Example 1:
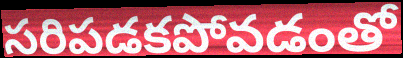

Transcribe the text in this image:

సరిపడకపోవడంతో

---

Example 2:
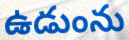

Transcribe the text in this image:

ఉడుంను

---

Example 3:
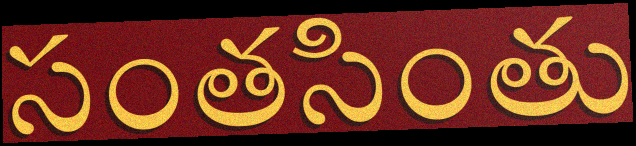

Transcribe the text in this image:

సంతసింతు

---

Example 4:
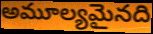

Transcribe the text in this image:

అమూల్యమైనది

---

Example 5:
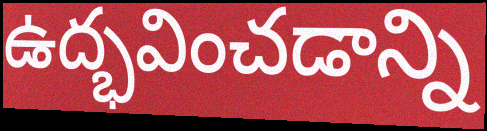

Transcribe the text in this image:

ఉద్భవించడాన్ని